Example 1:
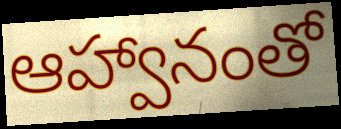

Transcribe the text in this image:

ఆహ్వానంతో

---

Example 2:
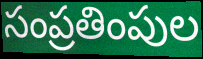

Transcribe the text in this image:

సంప్రతింపుల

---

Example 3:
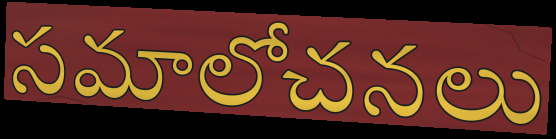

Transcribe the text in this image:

సమాలోచనలు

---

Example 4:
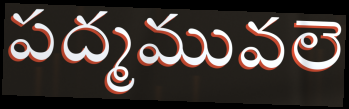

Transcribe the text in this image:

పద్మమువలె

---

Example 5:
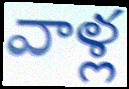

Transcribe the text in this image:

వాళ్ల